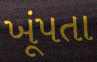
ખૂંપતા